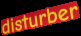
disturber